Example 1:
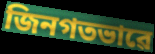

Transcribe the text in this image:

জিনগতভাৱে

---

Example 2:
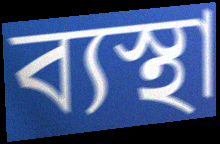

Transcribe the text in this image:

ব্যস্থা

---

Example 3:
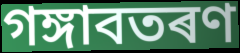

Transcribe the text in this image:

গঙ্গাবতৰণ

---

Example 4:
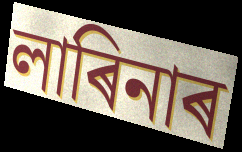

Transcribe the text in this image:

লাৰিনাৰ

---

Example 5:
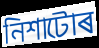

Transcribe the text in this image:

নিশাটোৰ